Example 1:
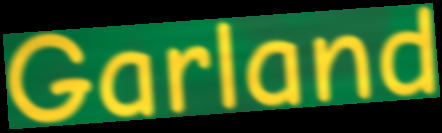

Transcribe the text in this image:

Garland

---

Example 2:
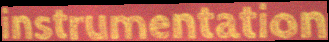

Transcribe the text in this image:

instrumentation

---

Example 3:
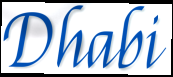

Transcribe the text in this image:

Dhabi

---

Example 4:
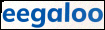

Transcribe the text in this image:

eegaloo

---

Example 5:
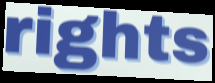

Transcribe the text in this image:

rights